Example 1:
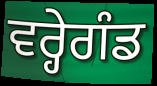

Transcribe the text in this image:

ਵਰ੍ਹੇਗੰਡ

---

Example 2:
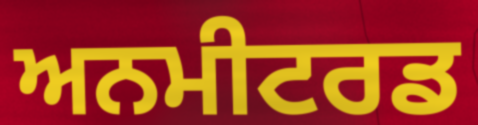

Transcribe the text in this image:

ਅਨਮੀਟਰਡ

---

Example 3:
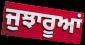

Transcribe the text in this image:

ਜੁਝਾਰੂਆਂ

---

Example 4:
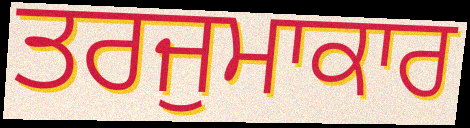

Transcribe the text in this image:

ਤਰਜੁਮਾਕਾਰ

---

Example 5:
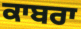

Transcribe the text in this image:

ਕਾਬਰਾ